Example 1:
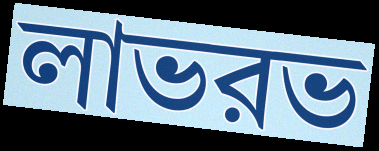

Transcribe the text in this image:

লাভরভ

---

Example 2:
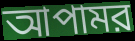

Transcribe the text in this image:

আপামর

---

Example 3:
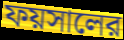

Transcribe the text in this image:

ফয়সালের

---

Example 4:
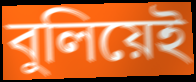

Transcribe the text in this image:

বুলিয়েই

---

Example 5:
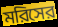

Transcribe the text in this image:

মরিসের